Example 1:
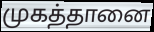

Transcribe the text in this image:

முகத்தானை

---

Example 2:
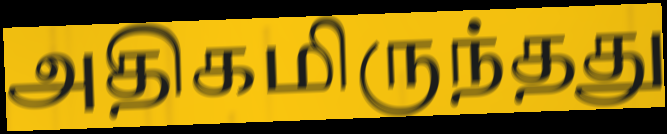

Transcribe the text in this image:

அதிகமிருந்தது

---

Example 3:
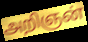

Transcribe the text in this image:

அறிஞன்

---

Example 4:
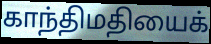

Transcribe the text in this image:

காந்திமதியைக்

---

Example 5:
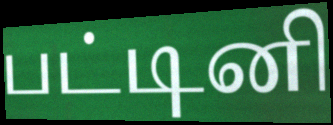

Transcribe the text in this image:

பட்டினி